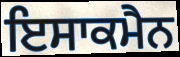
ਇਸਾਕਮੈਨ